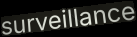
surveillance